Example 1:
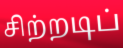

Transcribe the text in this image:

சிற்றடிப்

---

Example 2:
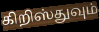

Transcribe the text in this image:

கிறிஸ்துவும்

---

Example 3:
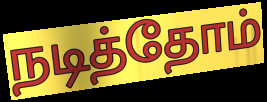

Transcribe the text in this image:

நடித்தோம்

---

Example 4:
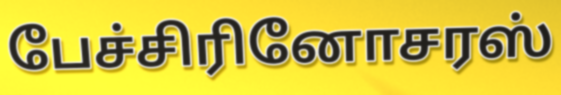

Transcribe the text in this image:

பேச்சிரினோசரஸ்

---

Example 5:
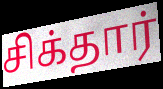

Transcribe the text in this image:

சிக்தார்